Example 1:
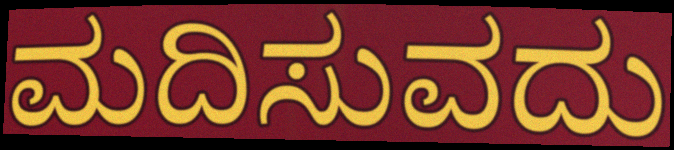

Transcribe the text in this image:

ಮದಿಸುವದು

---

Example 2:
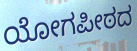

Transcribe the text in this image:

ಯೋಗಪೀಠದ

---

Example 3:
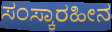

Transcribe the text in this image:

ಸಂಸ್ಕಾರಹೀನ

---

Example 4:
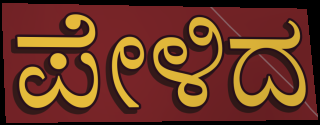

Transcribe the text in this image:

ಪೇಳಿದ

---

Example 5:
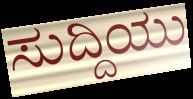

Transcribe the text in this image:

ಸುದ್ದಿಯು